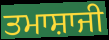
ਤਮਾਸ਼ਾਜੀ